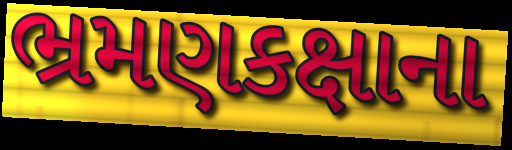
ભ્રમણકક્ષાના